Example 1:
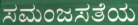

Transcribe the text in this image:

ಸಮಂಜಸತೆಯ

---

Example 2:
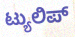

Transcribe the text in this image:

ಟ್ಯುಲಿಪ್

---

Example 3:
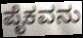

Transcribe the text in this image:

ಪೈಕವನು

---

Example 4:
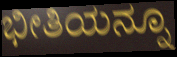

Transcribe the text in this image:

ಭೀತಿಯನ್ನೂ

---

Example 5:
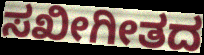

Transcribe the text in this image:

ಸಖೀಗೀತದ